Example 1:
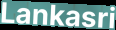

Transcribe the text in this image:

Lankasri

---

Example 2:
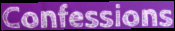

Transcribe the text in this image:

Confessions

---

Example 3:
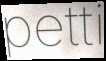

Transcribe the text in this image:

petti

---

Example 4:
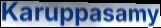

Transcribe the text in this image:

Karuppasamy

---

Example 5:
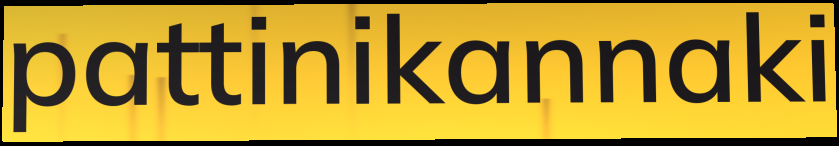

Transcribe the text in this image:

pattinikannaki